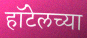
हॉटेलच्या